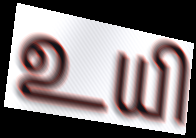
உயி